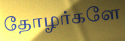
தோழர்களே